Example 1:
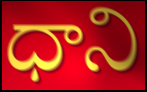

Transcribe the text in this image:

ధాని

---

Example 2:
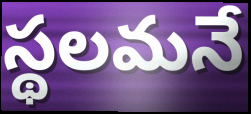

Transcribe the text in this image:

స్థలమనే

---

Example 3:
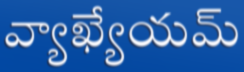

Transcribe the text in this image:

వ్యాఖ్యేయమ్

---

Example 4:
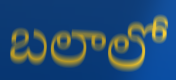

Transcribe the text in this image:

బలాలో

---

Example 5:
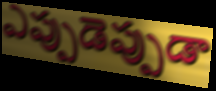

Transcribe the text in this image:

ఎప్పుడెప్పుడా